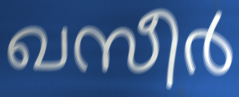
ഖസീർ